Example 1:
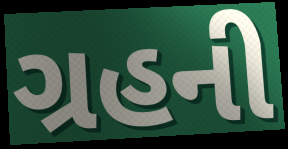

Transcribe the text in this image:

ગ્રહની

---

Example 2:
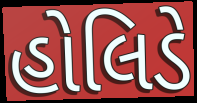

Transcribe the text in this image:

હોલિડે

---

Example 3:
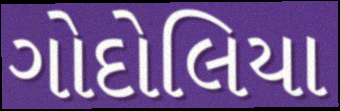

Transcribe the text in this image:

ગોદોલિયા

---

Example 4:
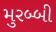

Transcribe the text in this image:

મુરબ્બી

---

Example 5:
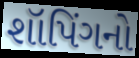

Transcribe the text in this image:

શૉપિંગનો